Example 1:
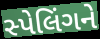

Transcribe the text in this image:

સ્પેલિંગને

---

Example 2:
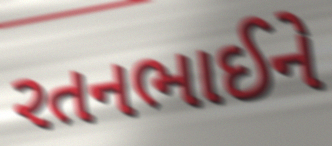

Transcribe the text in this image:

રતનભાઈને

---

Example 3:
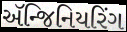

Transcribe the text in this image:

ઍન્જિનિયરિંગ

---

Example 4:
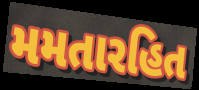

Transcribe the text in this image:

મમતારહિત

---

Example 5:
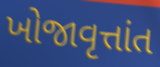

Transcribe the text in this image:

ખોજાવૃત્તાંત